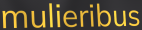
mulieribus